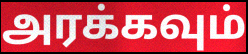
அரக்கவும்